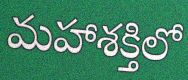
మహాశక్తిలో